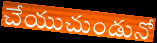
చేయుచుండునో